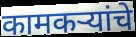
कामकऱ्यांचे